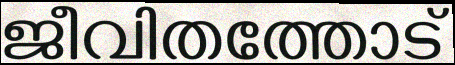
ജീവിതത്തോട്